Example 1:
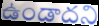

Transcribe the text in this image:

ఉండాదని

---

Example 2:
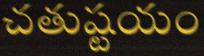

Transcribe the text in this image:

చతుష్టయం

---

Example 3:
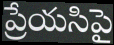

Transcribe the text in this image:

ప్రేయసిపై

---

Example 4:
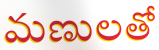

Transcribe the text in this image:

మణులతో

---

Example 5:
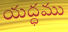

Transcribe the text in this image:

యద్ధము